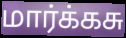
மார்க்கசு